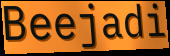
Beejadi